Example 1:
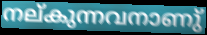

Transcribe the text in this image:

നല്കുന്നവനാണു്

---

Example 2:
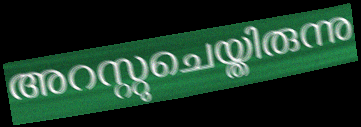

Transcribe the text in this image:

അറസ്റ്റുചെയ്തിരുന്നു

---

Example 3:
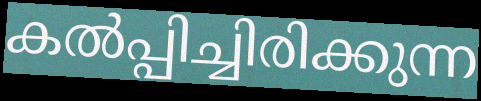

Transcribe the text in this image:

കൽപ്പിച്ചിരിക്കുന്ന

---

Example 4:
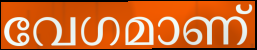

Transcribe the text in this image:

വേഗമാണ്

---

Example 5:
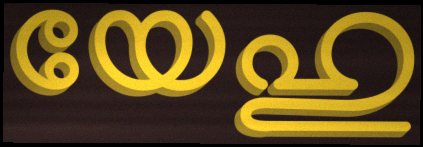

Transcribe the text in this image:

യേഹു